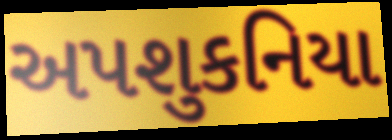
અપશુકનિયા